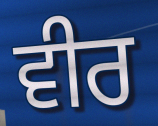
ਵੀਰ